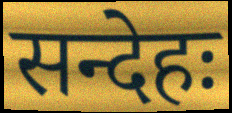
सन्देहः